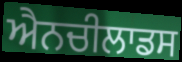
ਐਨਚੀਲਾਡਸ